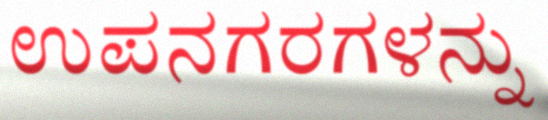
ಉಪನಗರಗಳನ್ನು